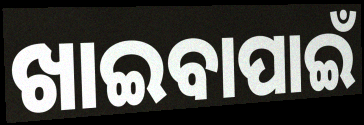
ଖାଇବାପାଇଁ